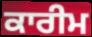
ਕਾਰੀਮ